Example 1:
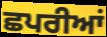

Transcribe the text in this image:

ਛਪਰੀਆਂ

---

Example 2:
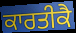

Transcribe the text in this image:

ਕਾਰਤੀਕੈ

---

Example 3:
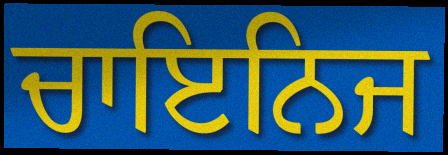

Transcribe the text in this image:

ਚਾਇਨਿਜ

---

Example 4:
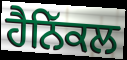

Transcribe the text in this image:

ਹੈਨਿੱਕਲ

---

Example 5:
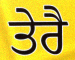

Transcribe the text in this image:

ਤੇਰੈ